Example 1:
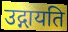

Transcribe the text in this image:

उद्गायति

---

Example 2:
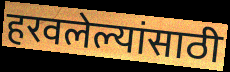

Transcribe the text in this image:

हरवलेल्यांसाठी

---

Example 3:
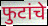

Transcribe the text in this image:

फुटांचे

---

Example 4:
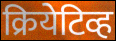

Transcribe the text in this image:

क्रियेटिव्ह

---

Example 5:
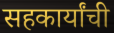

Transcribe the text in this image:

सहकार्यांची